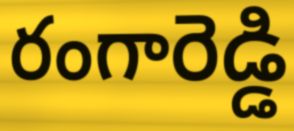
రంగారెడ్డి